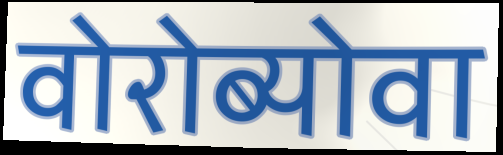
वोरोब्योवा